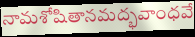
నామశోషితానమద్భవాంధవే